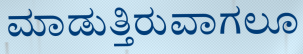
ಮಾಡುತ್ತಿರುವಾಗಲೂ